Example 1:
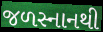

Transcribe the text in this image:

જળસ્નાનથી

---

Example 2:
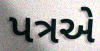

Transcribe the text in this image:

પત્રએ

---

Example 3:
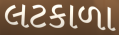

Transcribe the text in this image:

લટકાળા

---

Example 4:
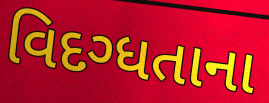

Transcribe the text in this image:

વિદગ્ધતાના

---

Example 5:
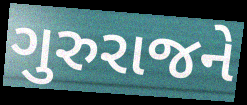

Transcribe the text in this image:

ગુરુરાજને